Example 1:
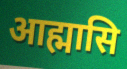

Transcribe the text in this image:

आह्मासि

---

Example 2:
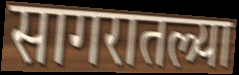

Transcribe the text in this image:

सागरातल्या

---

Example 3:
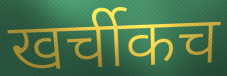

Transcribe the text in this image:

खर्चीकच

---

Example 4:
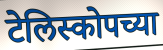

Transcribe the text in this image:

टेलिस्कोपच्या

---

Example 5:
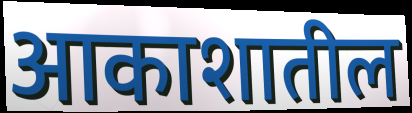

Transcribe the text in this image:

आकाशातील